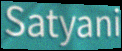
Satyani